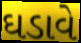
ઘડાવે